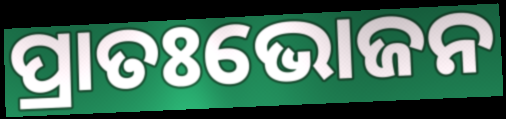
ପ୍ରାତଃଭୋଜନ